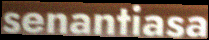
senantiasa